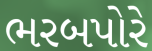
ભરબપોરે